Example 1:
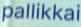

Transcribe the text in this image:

pallikkai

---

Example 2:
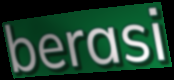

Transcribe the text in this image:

berasi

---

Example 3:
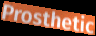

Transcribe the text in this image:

Prosthetic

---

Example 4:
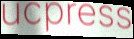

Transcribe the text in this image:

ucpress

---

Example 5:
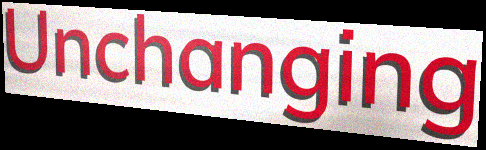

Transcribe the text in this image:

Unchanging